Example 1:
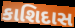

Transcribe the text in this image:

કાશિદાસ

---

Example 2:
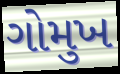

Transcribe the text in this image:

ગોમુખ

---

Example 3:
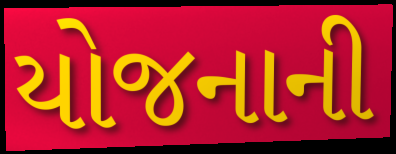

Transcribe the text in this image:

યોજનાની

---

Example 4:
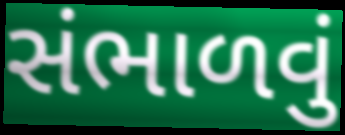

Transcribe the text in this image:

સંભાળવું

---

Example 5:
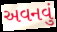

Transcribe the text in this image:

અવનવું